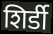
शिर्डी